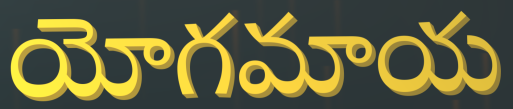
యోగమాయ